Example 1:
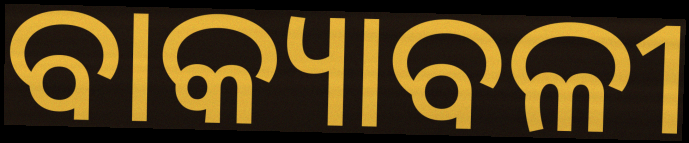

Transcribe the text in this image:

ବାକ୍ୟାବଳୀ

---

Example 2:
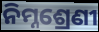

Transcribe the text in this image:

ନିମ୍ନଶ୍ରେଣୀ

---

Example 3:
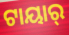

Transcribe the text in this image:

ଟାୟାର୍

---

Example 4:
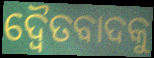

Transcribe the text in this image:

ଦ୍ୱୈତବାଦକୁ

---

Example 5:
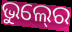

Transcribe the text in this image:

ଭୁଲ୍‍ରେ